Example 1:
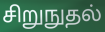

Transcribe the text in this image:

சிறுநுதல்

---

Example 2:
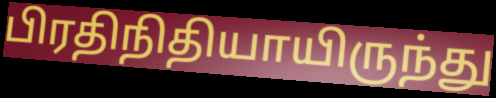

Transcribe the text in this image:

பிரதிநிதியாயிருந்து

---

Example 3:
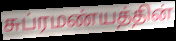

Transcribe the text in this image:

சுப்ரமண்யத்தின்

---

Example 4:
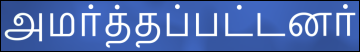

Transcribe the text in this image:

அமர்த்தப்பட்டனர்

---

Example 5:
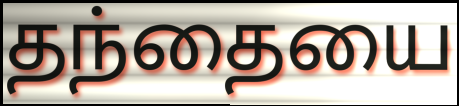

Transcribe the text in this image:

தந்தையை